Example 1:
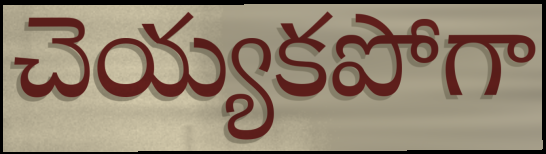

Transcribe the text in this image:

చెయ్యకపోగా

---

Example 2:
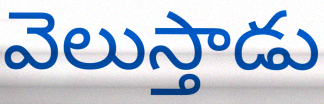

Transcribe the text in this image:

వెలుస్తాడు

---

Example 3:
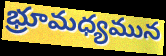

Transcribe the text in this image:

భ్రూమధ్యమున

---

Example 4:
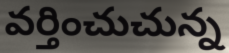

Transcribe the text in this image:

వర్తించుచున్న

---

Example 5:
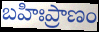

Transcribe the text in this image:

బహిఃప్రాణం